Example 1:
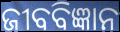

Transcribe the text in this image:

ଜୀବବିଜ୍ଞାନ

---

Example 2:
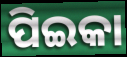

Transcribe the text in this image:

ପିଇକା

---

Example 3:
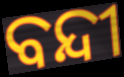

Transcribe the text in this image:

ବନ୍ଦୀ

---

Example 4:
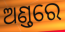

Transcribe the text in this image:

ଅଣ୍ଡରେ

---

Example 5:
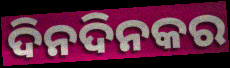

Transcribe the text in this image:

ଦିନଦିନକର